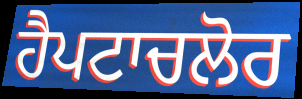
ਹੈਪਟਾਚਲੋਰ